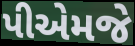
પીએમજે